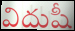
విదుషీ